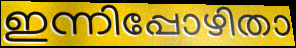
ഇന്നിപ്പോഴിതാ